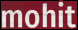
mohit